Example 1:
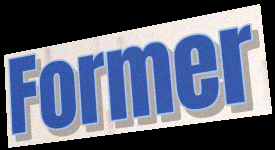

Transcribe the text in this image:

Former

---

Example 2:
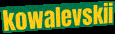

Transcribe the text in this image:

kowalevskii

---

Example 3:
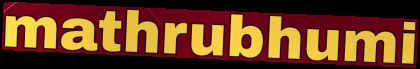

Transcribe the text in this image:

mathrubhumi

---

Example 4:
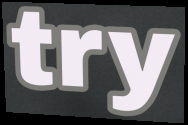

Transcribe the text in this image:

try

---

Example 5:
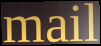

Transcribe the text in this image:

mail